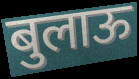
बुलाऊ